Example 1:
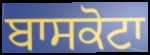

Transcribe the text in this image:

ਬਾਸਕੋਟਾ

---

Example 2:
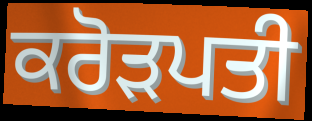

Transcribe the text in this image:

ਕਰੋੜਪਤੀ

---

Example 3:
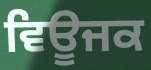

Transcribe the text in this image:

ਵਿਊਜਕ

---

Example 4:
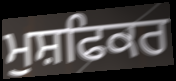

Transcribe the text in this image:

ਮੁਸ਼ਫਿਕਰ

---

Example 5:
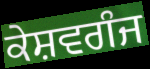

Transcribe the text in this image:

ਕੇਸ਼ਵਗੰਜ